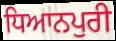
ਧਿਆਨਪੁਰੀ